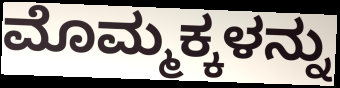
ಮೊಮ್ಮಕ್ಕಳನ್ನು